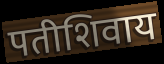
पतीशिवाय